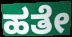
ಹತೇ